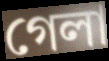
গেলা